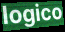
logico